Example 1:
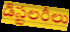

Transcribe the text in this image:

డిస్టలరీలు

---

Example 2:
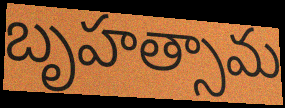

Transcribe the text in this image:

బృహత్సామ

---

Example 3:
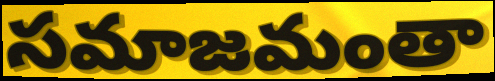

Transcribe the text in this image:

సమాజమంతా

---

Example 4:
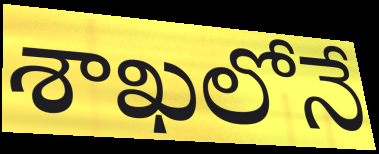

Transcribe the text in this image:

శాఖలోనే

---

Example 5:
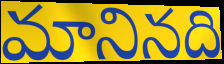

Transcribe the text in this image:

మానినది